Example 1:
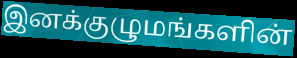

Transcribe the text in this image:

இனக்குழுமங்களின்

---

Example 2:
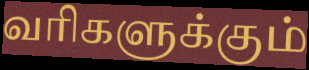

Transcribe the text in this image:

வரிகளுக்கும்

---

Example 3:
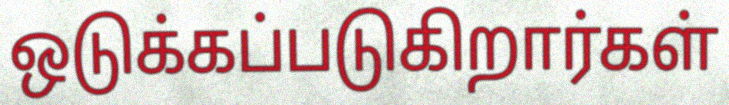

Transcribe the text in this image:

ஒடுக்கப்படுகிறார்கள்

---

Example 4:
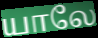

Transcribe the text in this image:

யாலே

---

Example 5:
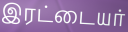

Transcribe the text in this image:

இரட்டையர்